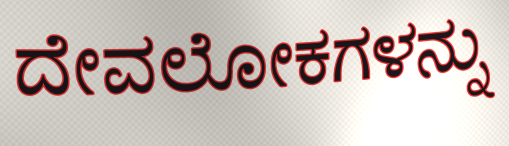
ದೇವಲೋಕಗಳನ್ನು